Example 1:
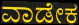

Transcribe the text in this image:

ವಾಡೇಕ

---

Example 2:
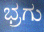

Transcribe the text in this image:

ಭ್ರಗು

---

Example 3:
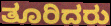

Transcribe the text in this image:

ತೂರಿದರು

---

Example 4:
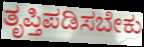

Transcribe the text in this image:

ತೃಪ್ತಿಪಡಿಸಬೇಕು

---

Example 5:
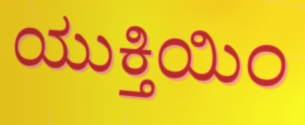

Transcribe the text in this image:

ಯುಕ್ತಿಯಿಂ